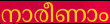
നാരീണാം